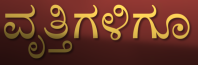
ವೃತ್ತಿಗಳಿಗೂ